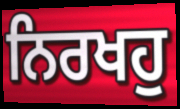
ਨਿਰਖਹੁ